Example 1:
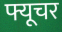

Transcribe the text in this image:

फ्यूचर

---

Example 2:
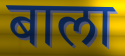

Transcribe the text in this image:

बाला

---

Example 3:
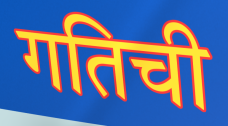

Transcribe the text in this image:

गतिची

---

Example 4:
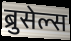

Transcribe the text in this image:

ब्रुसेल्स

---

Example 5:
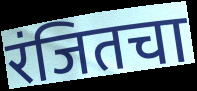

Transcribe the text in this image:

रंजितचा